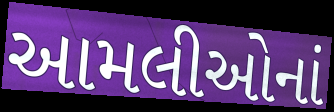
આમલીઓનાં